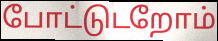
போட்டுடறோம்